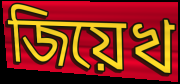
জিয়েখ